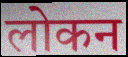
लोकन